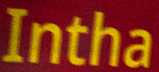
Intha